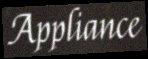
Appliance